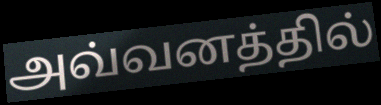
அவ்வனத்தில்